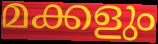
മക്കളും